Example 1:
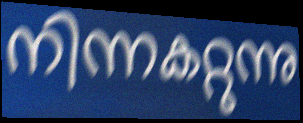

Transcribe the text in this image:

നിന്നകറ്റുന്നു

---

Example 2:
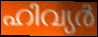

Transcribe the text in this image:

ഹിവ്യർ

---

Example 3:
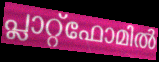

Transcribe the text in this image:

പ്ലാറ്റ്ഫോമിൽ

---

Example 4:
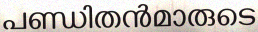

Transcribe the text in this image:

പണ്ഡിതൻമാരുടെ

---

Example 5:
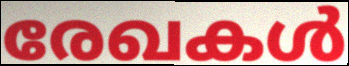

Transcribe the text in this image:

രേഖകൾ